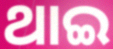
ଥାଇ